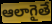
ఆలాగైతే